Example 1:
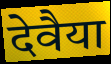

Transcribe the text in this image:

देवैया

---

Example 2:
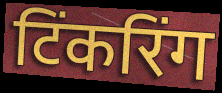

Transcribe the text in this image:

टिंकरिंग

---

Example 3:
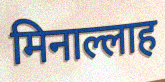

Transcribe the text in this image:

मिनाल्लाह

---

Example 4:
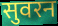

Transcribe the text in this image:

सुवरन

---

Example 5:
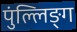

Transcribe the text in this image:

पुंल्लिङ्ग